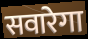
सवारेगा